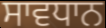
ਸਾਵਧਾਨ